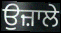
ਉਜ਼ਾਲੇ